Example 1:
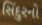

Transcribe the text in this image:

સિંદુરનો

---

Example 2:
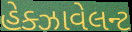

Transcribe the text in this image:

હેક્ઝાવેલન્ટ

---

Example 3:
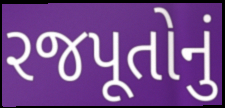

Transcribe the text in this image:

રજપૂતોનું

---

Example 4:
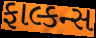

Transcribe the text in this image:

ફાલ્કન્સ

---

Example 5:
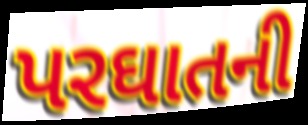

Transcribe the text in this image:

પરઘાતની